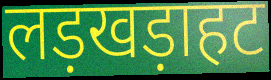
लड़खड़ाहट